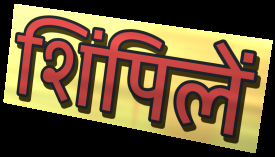
शिंपिलें